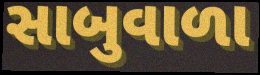
સાબુવાળા